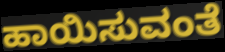
ಹಾಯಿಸುವಂತೆ